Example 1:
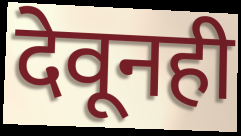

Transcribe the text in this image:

देवूनही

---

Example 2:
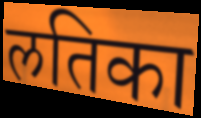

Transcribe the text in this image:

लतिका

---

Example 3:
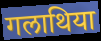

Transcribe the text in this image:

गलाथिया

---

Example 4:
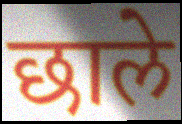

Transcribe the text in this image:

छाले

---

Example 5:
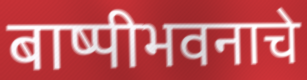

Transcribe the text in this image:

बाष्पीभवनाचे